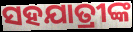
ସହଯାତ୍ରୀଙ୍କ